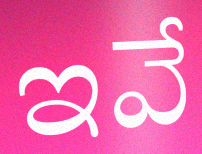
ఇవే